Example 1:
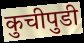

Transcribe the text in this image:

कुचीपुडी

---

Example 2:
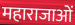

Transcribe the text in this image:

महाराजाओं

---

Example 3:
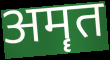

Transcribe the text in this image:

अमॄत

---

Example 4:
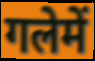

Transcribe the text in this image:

गलेमें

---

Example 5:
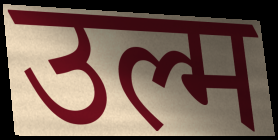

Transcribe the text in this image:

उल्म